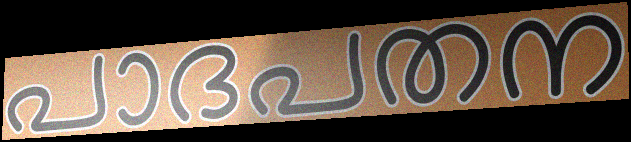
പാദപതന